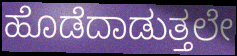
ಹೊಡೆದಾಡುತ್ತಲೇ